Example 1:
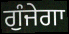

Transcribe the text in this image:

ਗੁੰਜੇਗਾ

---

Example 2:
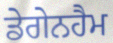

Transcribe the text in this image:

ਡੇਗੇਨਹੈਮ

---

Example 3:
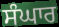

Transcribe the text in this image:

ਸੰਘਾਰ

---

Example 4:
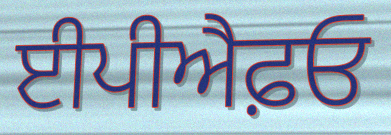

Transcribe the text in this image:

ਈਪੀਐਫ਼ਓ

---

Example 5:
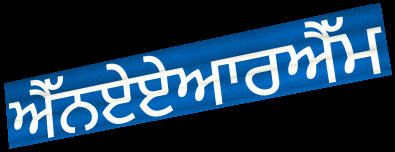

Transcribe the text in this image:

ਐੱਨਏਏਆਰਐੱਮ